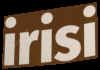
irisi